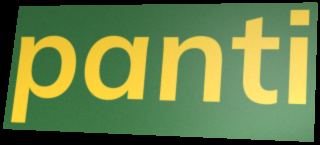
panti